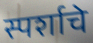
स्पर्शाचे